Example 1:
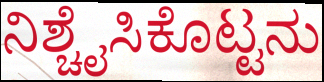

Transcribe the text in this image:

ನಿಶ್ಚೈಸಿಕೊಟ್ಟನು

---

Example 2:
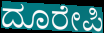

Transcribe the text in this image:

ದೂರೇಪಿ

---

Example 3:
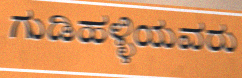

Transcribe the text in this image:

ಗುಡಿಹಳ್ಳಿಯವರು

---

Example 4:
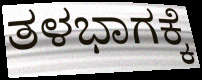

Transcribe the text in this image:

ತಳಭಾಗಕ್ಕೆ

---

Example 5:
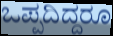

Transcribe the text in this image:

ಒಪ್ಪದಿದ್ದರೂ